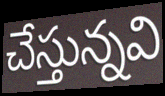
చేస్తున్నవి